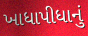
ખાધાપીધાનું